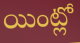
యింట్లో